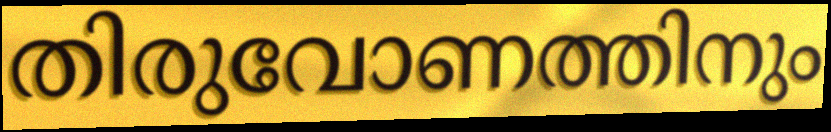
തിരുവോണത്തിനും